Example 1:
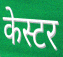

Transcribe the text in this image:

केस्टर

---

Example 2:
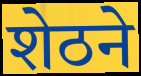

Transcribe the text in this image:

शेठने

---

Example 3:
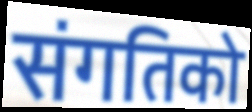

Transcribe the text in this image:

संगतिको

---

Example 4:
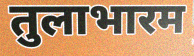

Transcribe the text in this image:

तुलाभारम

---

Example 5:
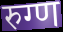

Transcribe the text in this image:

रुग्ण